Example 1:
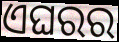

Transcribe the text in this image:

ଏଘରର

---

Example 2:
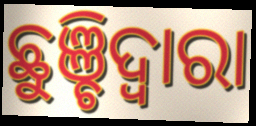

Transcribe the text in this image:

ଛୁଞ୍ଚିଦ୍ଵାରା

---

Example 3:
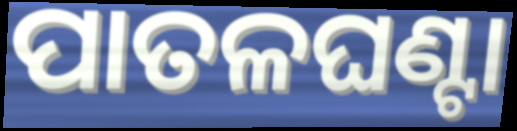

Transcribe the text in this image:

ପାତଳଘଣ୍ଟା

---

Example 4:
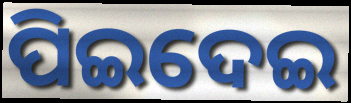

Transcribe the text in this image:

ପିଇଦେଇ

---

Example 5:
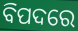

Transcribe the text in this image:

ବିପଦରେ